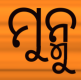
ମୁନ୍ମୁ